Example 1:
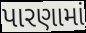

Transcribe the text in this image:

પારણામાં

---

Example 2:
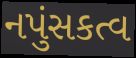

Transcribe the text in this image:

નપુંસકત્વ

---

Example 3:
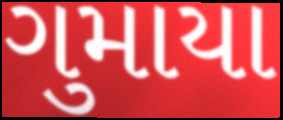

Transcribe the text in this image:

ગુમાયા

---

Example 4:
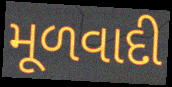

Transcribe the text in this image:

મૂળવાદી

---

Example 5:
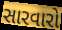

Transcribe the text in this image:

સારવારો